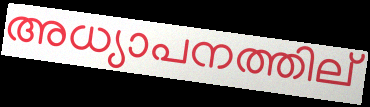
അധ്യാപനത്തില്